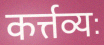
कर्त्तव्यः